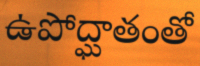
ఉపోద్ఘాతంతో